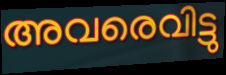
അവരെവിട്ടു